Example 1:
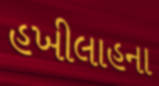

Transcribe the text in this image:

હખીલાહના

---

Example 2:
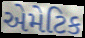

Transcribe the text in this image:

એમેટિક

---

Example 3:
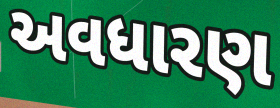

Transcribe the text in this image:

અવધારણ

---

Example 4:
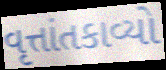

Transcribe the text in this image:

વૃત્તાંતકાવ્યો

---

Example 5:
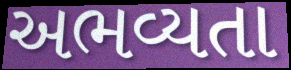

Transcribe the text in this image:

અભવ્યતા